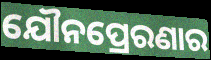
ଯୌନପ୍ରେରଣାର